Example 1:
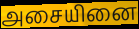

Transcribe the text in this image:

அசையினை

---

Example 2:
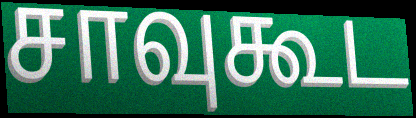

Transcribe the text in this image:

சாவுகூட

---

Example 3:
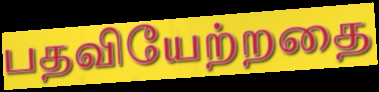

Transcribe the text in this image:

பதவியேற்றதை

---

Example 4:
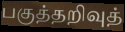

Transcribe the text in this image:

பகுத்தறிவுத்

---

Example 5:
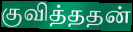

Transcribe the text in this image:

குவித்ததன்